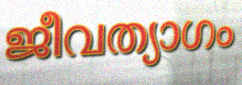
ജീവത്യാഗം